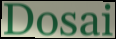
Dosai